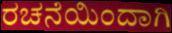
ರಚನೆಯಿಂದಾಗಿ